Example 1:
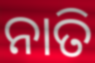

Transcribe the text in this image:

ନାତି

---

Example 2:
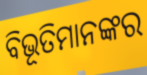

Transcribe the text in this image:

ବିଭୂତିମାନଙ୍କର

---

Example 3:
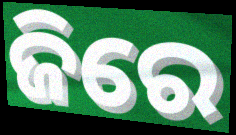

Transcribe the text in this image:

ଜିରେ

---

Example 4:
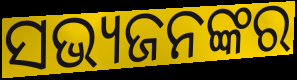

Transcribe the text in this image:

ସଭ୍ୟଜନଙ୍କର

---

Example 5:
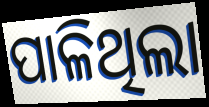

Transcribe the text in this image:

ପାଳିଥିଲା